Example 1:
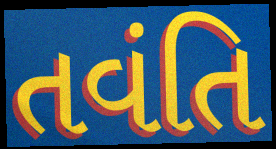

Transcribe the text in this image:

તવંતિ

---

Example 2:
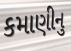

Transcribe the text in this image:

કમાણીનુ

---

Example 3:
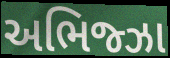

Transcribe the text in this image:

અભિજ્ઝા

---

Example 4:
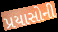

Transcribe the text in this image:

પ્રયાસોની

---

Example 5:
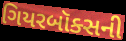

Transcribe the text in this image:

ગિયરબૉક્સની